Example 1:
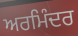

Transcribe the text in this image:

ਅਰਮਿੰਦਰ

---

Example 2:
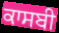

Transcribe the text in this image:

ਕਾਸਬੀ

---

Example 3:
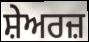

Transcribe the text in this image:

ਸ਼ੇਅਰਜ਼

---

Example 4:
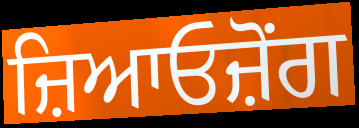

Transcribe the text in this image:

ਜ਼ਿਆਓਜ਼ੋਂਗ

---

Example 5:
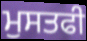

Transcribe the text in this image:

ਮੁਸਤਫੀ